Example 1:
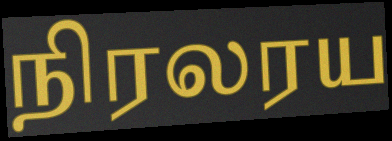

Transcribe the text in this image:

நிரலரய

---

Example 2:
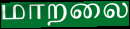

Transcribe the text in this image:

மாறலை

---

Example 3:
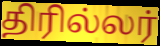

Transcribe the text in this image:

திரில்லர்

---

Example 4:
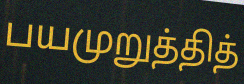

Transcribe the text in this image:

பயமுறுத்தித்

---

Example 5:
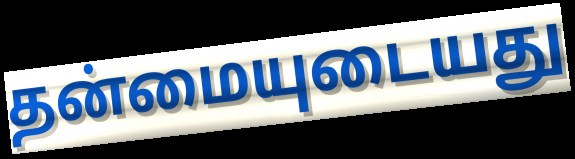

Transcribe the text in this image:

தன்மையுடையது